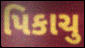
પિકાચુ